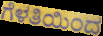
ಗೆಳತಿಯಿಂದ